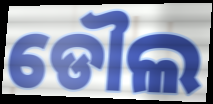
ଡୌଲ